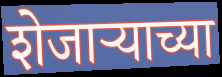
शेजाऱ्याच्या